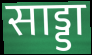
साड्डा